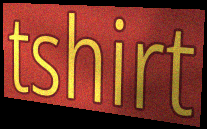
tshirt